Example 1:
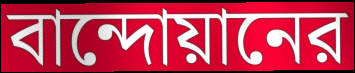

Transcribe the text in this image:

বান্দোয়ানের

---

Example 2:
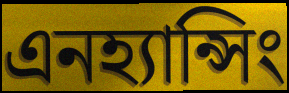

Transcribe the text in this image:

এনহ্যান্সিং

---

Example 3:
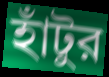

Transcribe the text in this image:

হাঁটুর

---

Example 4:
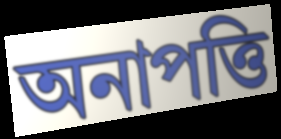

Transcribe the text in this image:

অনাপত্তি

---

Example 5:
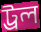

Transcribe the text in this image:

ট্রল